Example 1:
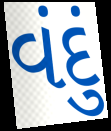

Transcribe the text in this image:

વંદું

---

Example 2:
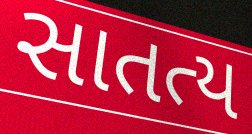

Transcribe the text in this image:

સાતત્ય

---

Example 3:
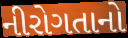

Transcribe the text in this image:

નીરોગતાનો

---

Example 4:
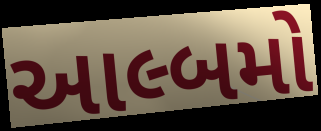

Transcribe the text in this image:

આલ્બમો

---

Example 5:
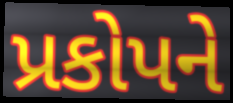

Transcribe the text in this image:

પ્રકોપને